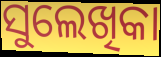
ସୁଲେଖିକା